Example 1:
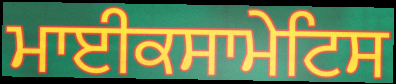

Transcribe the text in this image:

ਮਾਈਕਸਾਮੇਟਿਸ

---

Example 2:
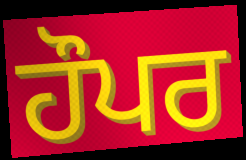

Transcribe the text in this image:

ਹੌਪਰ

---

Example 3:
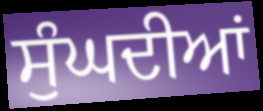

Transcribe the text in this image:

ਸੁੰਘਦੀਆਂ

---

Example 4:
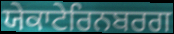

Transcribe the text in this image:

ਯੇਕਾਟੇਰਿਨਬਰਗ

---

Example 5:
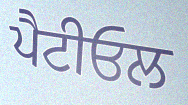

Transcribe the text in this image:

ਪੈਟੀਓਲ